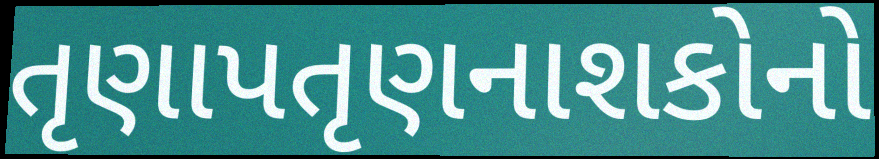
તૃણાપતૃણનાશકોનો